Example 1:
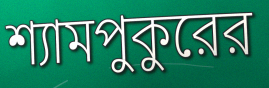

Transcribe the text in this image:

শ্যামপুকুরের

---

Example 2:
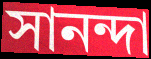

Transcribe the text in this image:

সানন্দা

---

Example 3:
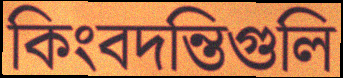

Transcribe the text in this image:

কিংবদন্তিগুলি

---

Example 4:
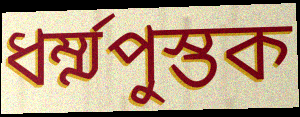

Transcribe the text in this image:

ধর্ম্মপুস্তক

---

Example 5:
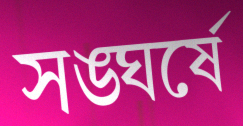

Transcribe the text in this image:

সঙ্ঘর্ষে